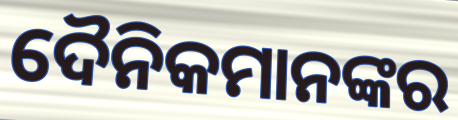
ଦୈନିକମାନଙ୍କର